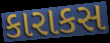
કારાકસ